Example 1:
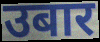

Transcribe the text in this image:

उबार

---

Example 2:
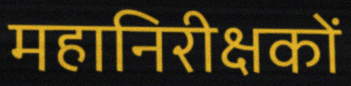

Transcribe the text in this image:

महानिरीक्षकों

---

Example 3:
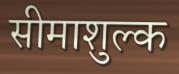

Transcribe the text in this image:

सीमाशुल्क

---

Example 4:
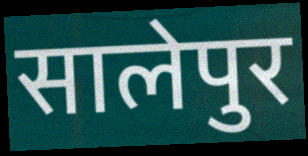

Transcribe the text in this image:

सालेपुर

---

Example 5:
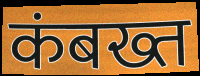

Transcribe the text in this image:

कंबख्त